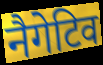
नैगेटिव